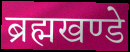
ब्रह्मखण्डे